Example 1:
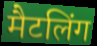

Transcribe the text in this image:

मैटलिंग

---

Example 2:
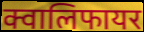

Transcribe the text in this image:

क्वालिफायर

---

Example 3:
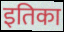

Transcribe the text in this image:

इतिका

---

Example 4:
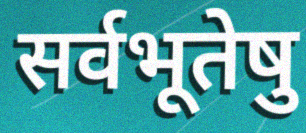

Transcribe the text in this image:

सर्वभूतेषु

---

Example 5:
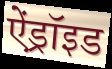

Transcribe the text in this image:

ऐंड्रॉइड